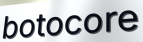
botocore